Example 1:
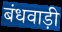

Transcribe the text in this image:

बंधवाड़ी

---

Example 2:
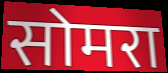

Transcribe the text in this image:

सोमरा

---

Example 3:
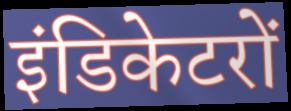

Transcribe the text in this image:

इंडिकेटरों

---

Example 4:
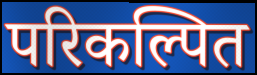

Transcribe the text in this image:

परिकल्पित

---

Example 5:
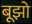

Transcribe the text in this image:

बूझो